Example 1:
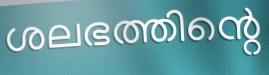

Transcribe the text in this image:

ശലഭത്തിന്റെ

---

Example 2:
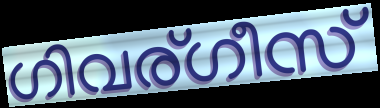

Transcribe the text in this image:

ഗിവര്ഗീസ്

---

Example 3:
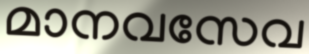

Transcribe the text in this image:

മാനവസേവ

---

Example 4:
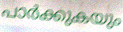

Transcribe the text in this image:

പാർക്കുകയും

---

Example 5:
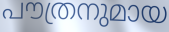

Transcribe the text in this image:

പൗത്രനുമായ